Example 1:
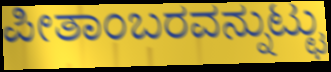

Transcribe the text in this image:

ಪೀತಾಂಬರವನ್ನುಟ್ಟು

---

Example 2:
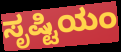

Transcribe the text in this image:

ಸೃಷ್ಟಿಯಂ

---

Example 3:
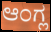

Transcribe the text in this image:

ಆಂಗ್ಲ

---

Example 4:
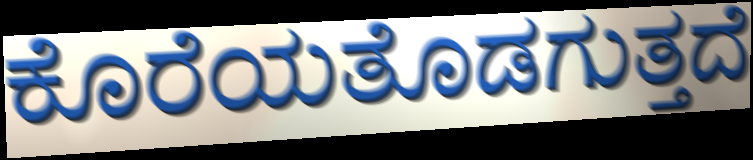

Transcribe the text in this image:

ಕೊರೆಯತೊಡಗುತ್ತದೆ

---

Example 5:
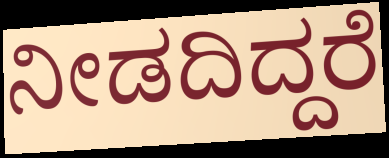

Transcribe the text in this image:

ನೀಡದಿದ್ದರೆ